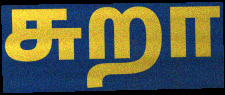
சுறா